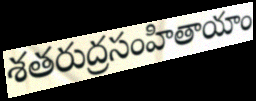
శతరుద్రసంహితాయాం